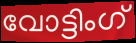
വോട്ടിംഗ്